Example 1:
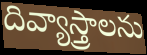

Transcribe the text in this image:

దివ్యాస్త్రాలను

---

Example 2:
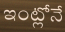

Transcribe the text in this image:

ఇంట్లోనే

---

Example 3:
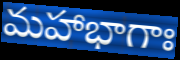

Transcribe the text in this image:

మహాభాగాః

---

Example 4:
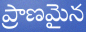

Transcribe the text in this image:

ప్రాణమైన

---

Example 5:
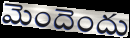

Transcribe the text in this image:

మెందెందు